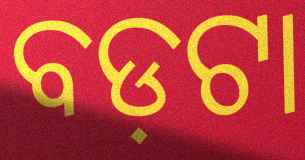
ବଡ଼ଟା